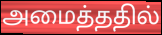
அமைத்ததில்